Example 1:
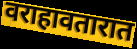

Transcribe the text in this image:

वराहावतारात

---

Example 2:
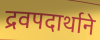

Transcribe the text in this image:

द्रवपदार्थाने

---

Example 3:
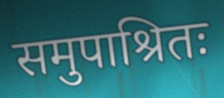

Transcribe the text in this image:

समुपाश्रितः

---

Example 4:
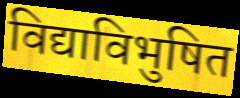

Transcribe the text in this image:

विद्याविभुषित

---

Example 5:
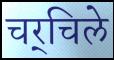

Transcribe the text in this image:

चर्चिले